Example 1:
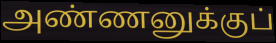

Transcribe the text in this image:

அண்ணனுக்குப்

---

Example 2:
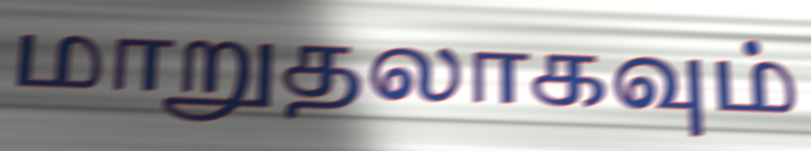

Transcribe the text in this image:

மாறுதலாகவும்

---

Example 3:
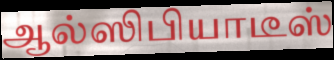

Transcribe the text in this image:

ஆல்ஸிபியாடீஸ்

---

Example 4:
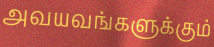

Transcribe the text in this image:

அவயவங்களுக்கும்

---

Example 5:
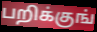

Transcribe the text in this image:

பறிக்குங்